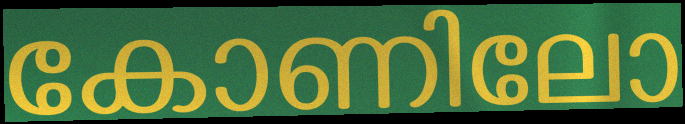
കോണിലോ